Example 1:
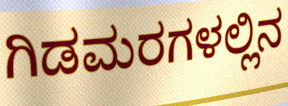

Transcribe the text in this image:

ಗಿಡಮರಗಳಲ್ಲಿನ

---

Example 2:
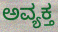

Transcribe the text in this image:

ಅವ್ಯಕ್ತ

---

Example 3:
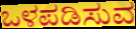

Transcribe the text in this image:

ಒಳಪಡಿಸುವ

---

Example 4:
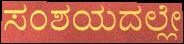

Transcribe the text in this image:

ಸಂಶಯದಲ್ಲೇ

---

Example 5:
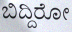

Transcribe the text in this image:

ಬಿದ್ದಿರೋ